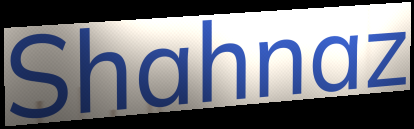
Shahnaz